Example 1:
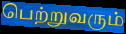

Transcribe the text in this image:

பெற்றுவரும்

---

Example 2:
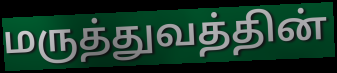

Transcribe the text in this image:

மருத்துவத்தின்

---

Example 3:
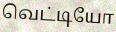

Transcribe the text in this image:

வெட்டியோ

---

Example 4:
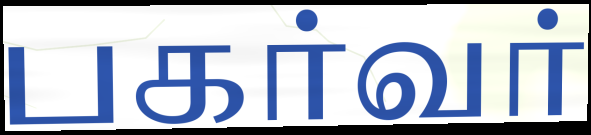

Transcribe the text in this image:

பகர்வர்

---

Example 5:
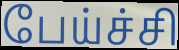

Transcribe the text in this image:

பேய்ச்சி